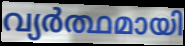
വ്യർത്ഥമായി